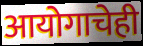
आयोगाचेही